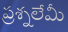
ప్రశ్నలేమీ